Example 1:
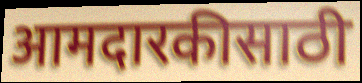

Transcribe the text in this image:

आमदारकीसाठी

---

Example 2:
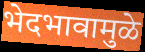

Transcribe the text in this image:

भेदभावामुळे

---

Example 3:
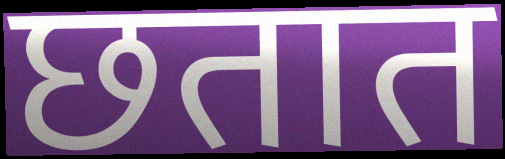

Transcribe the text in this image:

छतात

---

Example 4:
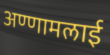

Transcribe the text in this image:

अण्णामलाई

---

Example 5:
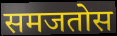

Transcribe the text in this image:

समजतोस